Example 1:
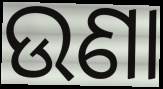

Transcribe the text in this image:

ଉଣା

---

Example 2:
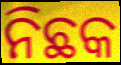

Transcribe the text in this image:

ନିଛକ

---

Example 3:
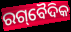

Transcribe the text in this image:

ରଗ୍‌ବୈଦିକ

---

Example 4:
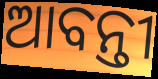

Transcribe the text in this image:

ଆବନ୍ତୀ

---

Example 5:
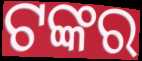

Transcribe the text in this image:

ଟଙ୍କର